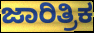
ಜಾರಿತ್ರಿಕ